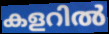
കളറിൽ